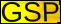
GSP